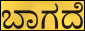
ಬಾಗದೆ